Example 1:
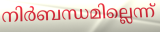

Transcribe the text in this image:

നിർബന്ധമില്ലെന്ന്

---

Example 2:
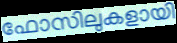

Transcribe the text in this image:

ഫോസിലുകളായി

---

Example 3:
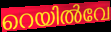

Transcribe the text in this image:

റെയിൽവേ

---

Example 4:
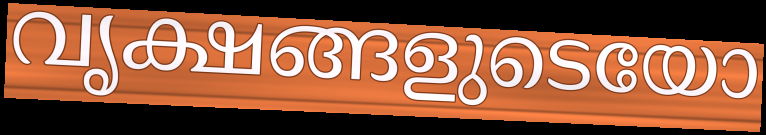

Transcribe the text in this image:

വൃക്ഷങ്ങളുടെയോ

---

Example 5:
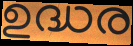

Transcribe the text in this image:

ഉദ്ധര